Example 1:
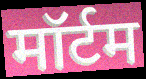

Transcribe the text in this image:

मॉर्टम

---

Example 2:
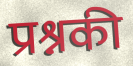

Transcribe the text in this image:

प्रश्नकी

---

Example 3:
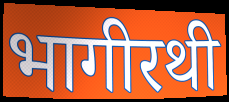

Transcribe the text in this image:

भागीरथी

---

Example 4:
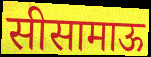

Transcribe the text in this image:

सीसामाऊ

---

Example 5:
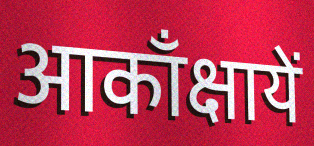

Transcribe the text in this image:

आकाँक्षायें